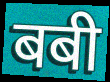
बबी